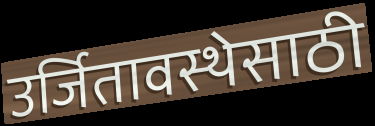
उर्जितावस्थेसाठी